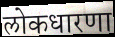
लोकधारणा